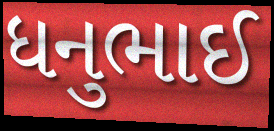
ધનુભાઈ